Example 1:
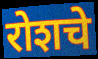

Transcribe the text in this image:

रोशचे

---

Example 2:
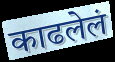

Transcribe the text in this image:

काढलेलं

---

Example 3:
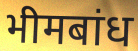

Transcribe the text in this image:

भीमबांध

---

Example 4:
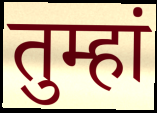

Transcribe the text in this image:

तुम्हां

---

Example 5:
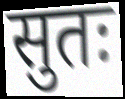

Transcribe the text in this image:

सुतः